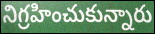
నిగ్రహించుకున్నారు